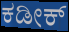
ಕಡೀಕ್